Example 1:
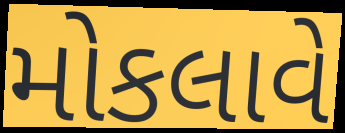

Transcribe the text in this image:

મોકલાવે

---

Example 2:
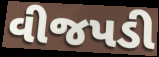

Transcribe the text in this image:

વીજપડી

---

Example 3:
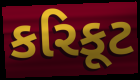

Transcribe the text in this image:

કરિકૂટ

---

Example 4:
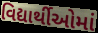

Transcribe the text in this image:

વિદ્યાર્થીઓમાં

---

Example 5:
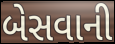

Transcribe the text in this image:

બેસવાની